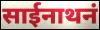
साईनाथनं